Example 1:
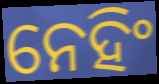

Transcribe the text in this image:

ନେହିଂ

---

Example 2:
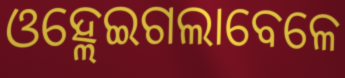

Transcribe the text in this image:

ଓହ୍ଲେଇଗଲାବେଳେ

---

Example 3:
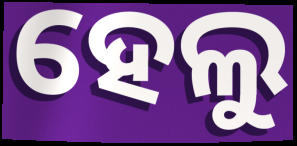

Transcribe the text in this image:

ହେଲୁ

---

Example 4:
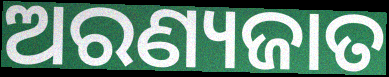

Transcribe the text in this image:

ଅରଣ୍ୟଜାତ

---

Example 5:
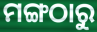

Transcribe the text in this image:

ମଙ୍ଗଠାରୁ